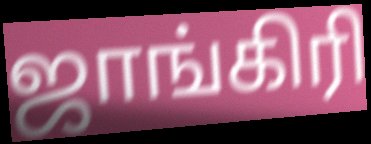
ஜாங்கிரி